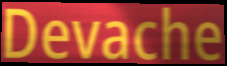
Devache